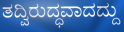
ತದ್ವಿರುದ್ಧವಾದದ್ದು